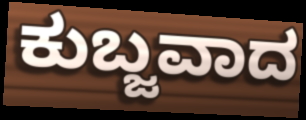
ಕುಬ್ಜವಾದ